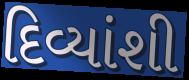
દિવ્યાંશી